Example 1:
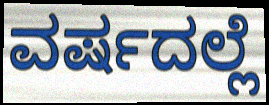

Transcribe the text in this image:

ವರ್ಷದಲ್ಲೆ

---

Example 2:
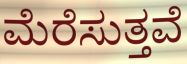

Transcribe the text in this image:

ಮೆರೆಸುತ್ತವೆ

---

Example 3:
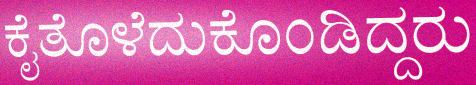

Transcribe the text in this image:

ಕೈತೊಳೆದುಕೊಂಡಿದ್ದರು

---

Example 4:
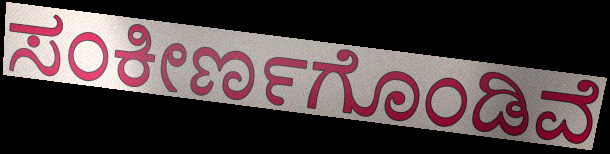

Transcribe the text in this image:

ಸಂಕೀರ್ಣಗೊಂಡಿವೆ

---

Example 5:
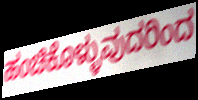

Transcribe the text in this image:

ಹಂಚಿಕೊಳ್ಳುವುದರಿಂದ